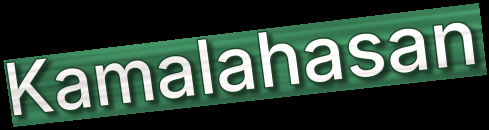
Kamalahasan